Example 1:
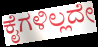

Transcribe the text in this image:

ಕೈಗಳಿಲ್ಲದೇ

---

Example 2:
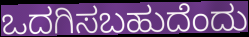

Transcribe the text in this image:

ಒದಗಿಸಬಹುದೆಂದು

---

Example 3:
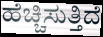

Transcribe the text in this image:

ಹೆಚ್ಚಿಸುತ್ತಿದೆ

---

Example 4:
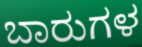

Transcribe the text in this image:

ಬಾರುಗಳ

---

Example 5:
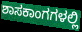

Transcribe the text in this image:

ಶಾಸಕಾಂಗಗಳಲ್ಲಿ